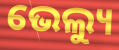
ଭେଲ୍ୟୁ